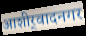
आशीर्वादनगर